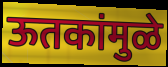
ऊतकांमुळे